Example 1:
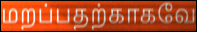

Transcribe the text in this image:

மறப்பதற்காகவே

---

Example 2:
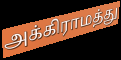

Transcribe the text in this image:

அக்கிராமத்து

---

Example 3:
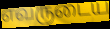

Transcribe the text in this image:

எவருடைய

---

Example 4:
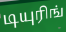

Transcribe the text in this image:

டியுரிங்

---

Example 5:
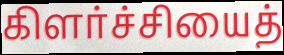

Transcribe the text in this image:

கிளர்ச்சியைத்